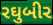
રઘુબીર